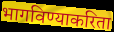
भागविण्याकरिता